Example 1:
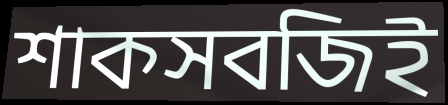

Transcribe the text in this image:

শাকসবজিই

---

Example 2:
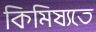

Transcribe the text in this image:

কিমিষ্যতে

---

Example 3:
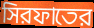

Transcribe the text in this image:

সিরফাতের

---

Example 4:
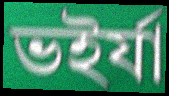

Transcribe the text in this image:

ভইর্যা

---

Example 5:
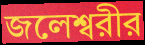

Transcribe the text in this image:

জলেশ্বরীর